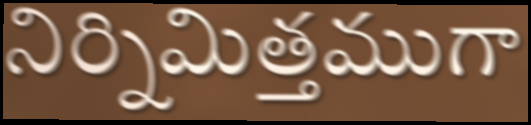
నిర్నిమిత్తముగా